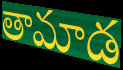
తామాడ